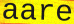
aare